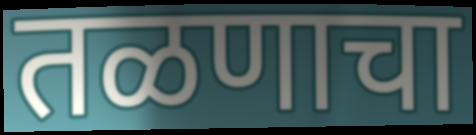
तळणाचा